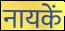
नायकें